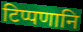
टिप्पणानि